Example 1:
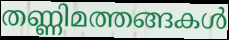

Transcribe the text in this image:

തണ്ണിമത്തങ്ങകൾ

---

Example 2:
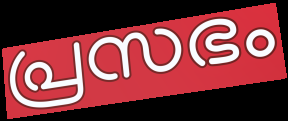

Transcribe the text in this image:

പ്രസഭം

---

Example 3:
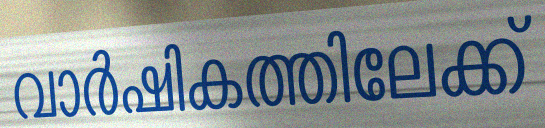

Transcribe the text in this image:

വാർഷികത്തിലേക്ക്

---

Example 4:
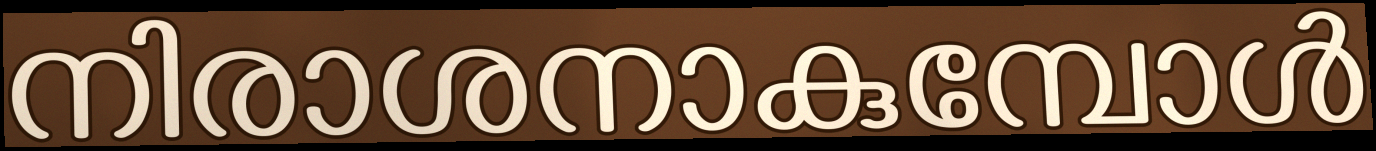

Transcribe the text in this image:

നിരാശനാകുമ്പോൾ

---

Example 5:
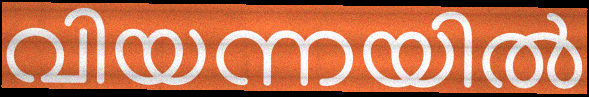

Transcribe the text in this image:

വിയന്നയിൽ